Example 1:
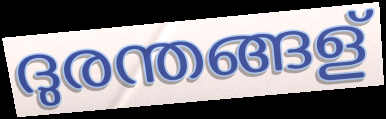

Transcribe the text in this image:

ദുരന്തങ്ങള്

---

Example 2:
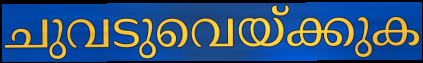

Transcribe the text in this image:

ചുവടുവെയ്ക്കുക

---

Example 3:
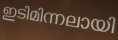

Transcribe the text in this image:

ഇടിമിന്നലായി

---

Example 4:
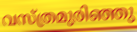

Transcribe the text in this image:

വസ്ത്രമുരിഞ്ഞു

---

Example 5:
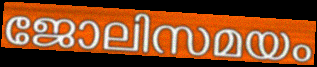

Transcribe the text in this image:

ജോലിസമയം